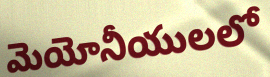
మెయోనీయులలో